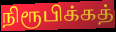
நிரூபிக்கத்